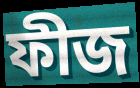
ফীজ